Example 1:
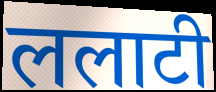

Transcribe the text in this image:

ललाटी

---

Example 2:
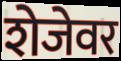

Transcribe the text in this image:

शेजेवर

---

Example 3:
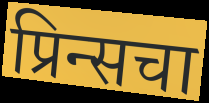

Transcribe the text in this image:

प्रिन्सचा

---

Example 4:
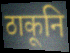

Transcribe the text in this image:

ठाकूनि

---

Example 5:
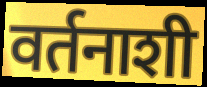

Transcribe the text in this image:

वर्तनाशी